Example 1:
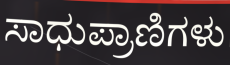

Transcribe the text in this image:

ಸಾಧುಪ್ರಾಣಿಗಳು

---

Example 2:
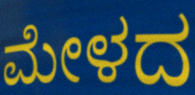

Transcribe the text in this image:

ಮೇಳದ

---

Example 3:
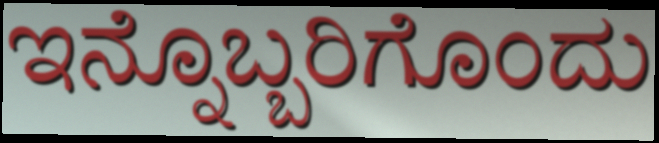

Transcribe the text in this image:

ಇನ್ನೊಬ್ಬರಿಗೊಂದು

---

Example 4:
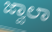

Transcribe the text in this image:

ಜ್ವಾಲಾ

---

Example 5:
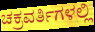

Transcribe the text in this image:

ಚಕ್ರವರ್ತಿಗಳಲ್ಲಿ